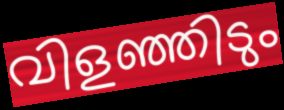
വിളഞ്ഞിടും